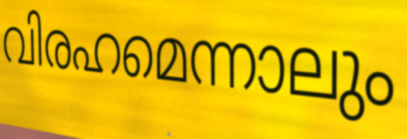
വിരഹമെന്നാലും